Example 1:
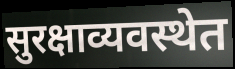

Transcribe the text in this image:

सुरक्षाव्यवस्थेत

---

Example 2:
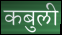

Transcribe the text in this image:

कबुली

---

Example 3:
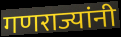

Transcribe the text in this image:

गणराज्यांनी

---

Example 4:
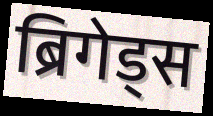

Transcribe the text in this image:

ब्रिगेड्स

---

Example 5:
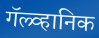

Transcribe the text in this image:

गॅल्व्हानिक